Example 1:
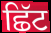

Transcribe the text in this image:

ਛਿੱਟ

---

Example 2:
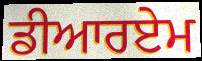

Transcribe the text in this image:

ਡੀਆਰਏਮ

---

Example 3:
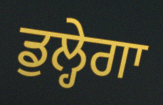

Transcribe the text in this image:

ਡੁਲ੍ਹੇਗਾ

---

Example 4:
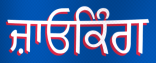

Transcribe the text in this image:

ਜ਼ਾਓਕਿੰਗ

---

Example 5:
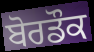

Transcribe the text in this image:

ਬੋਰਡੌਕ